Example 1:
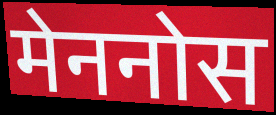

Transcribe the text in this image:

मेननोस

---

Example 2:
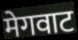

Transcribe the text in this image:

मेगवाट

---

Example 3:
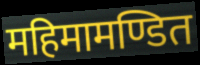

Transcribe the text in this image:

महिमामण्डित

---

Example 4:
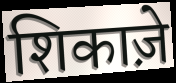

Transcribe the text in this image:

शिकाज़े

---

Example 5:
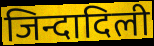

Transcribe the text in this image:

जिन्दादिली